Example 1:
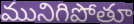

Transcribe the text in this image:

మునిగిపోతూ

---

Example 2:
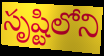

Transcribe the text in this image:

సృష్టిలోని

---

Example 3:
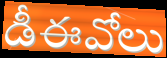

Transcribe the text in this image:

డీఈవోలు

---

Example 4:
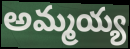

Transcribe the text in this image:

అమ్మయ్య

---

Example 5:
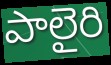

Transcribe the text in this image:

పాలైరి